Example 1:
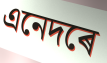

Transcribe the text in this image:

এনেদৰে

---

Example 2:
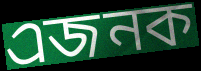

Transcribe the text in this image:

এজনক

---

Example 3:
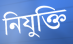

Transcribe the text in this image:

নিযুক্তি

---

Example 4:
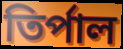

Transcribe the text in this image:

তিৰ্পাল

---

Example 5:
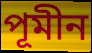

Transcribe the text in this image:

পূমীন